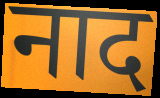
नाद